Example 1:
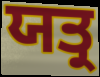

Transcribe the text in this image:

ਯਤ੍ਰ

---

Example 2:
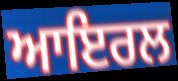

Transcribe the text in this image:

ਆਇਰਲ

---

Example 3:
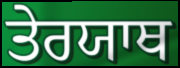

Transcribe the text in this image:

ਤੇਰਯਾਥ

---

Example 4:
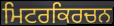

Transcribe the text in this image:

ਮਿਟਰਕਿਰਚਨ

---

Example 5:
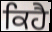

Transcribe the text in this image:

ਕਿਹੈ